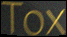
Tox